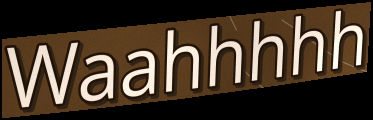
Waahhhhh